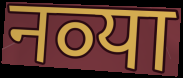
नव्‍या